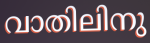
വാതിലിനു